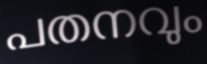
പതനവും